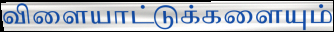
விளையாட்டுக்களையும்